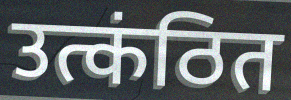
उत्कंठित